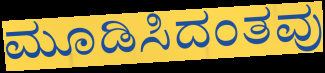
ಮೂಡಿಸಿದಂತವು